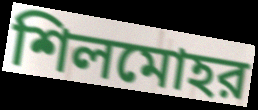
শিলমোহর